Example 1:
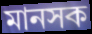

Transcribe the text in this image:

মানসক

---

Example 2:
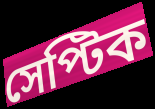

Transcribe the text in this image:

সেপ্টিক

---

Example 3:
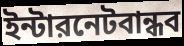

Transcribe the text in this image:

ইন্টারনেটবান্ধব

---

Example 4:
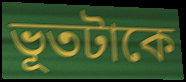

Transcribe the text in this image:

ভূতটাকে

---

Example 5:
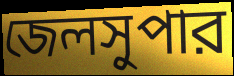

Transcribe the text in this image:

জেলসুপার